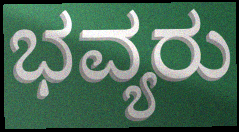
ಭವ್ಯರು